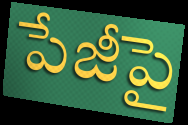
పేజీపై